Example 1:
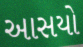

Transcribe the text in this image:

આસયો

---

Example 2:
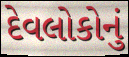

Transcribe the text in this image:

દેવલોકોનું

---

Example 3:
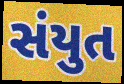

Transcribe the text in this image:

સંયુત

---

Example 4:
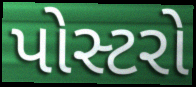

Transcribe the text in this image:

પોસ્ટરો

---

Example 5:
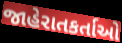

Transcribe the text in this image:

જાહેરાતકર્તાઓ